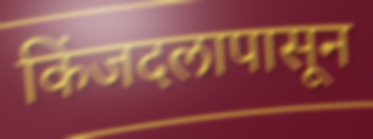
किंजदलापासून